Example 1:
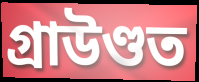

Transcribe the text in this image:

গ্ৰাউণ্ডত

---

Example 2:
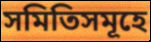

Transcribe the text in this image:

সমিতিসমূহে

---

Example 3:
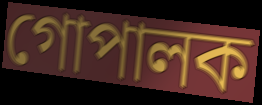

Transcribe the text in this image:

গোপালক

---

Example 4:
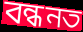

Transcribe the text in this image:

বন্ধনত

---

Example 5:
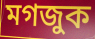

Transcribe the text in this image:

মগজুক